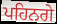
ਪਹਿਨਗੇ